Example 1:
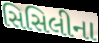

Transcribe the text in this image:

સિસિલીના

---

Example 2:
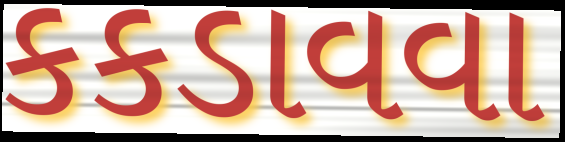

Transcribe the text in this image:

કકડાવવા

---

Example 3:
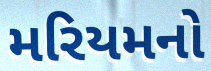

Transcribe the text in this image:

મરિયમનો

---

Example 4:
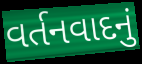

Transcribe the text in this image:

વર્તનવાદનું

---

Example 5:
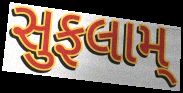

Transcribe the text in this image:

સુફલામ્